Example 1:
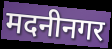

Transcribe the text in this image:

मदनीनगर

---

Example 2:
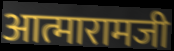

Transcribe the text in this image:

आत्मारामजी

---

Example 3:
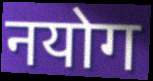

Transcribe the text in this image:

नयोग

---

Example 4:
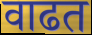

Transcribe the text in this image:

वाढत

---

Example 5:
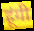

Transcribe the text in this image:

हूंगी